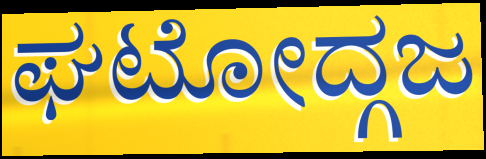
ಘಟೋದ್ಗಜ